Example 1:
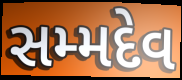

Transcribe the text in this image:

સમ્મદેવ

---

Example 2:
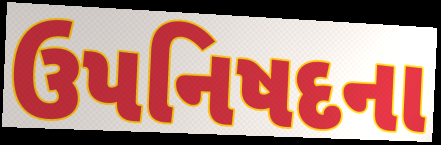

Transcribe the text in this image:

ઉપનિષદના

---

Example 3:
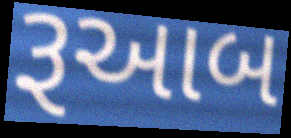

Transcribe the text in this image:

રૂઆબ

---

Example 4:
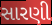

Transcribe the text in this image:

સારણી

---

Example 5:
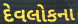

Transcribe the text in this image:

દેવલોકના